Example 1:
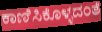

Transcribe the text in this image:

ಕಾಣಿಸಿಕೊಳ್ಳದಂತೆ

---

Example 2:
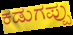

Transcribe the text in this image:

ಕಡುಗಪ್ಪು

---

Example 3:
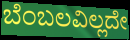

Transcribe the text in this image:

ಬೆಂಬಲವಿಲ್ಲದೇ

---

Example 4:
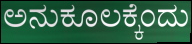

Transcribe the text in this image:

ಅನುಕೂಲಕ್ಕೆಂದು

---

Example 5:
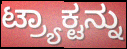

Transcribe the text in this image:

ಟ್ರ್ಯಾಕ್ಟನ್ನು